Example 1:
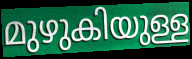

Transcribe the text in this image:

മുഴുകിയുള്ള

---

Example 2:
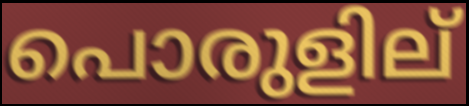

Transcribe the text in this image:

പൊരുളില്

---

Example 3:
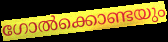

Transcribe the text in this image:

ഗോൽക്കൊണ്ടയും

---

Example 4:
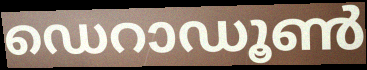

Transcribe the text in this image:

ഡെറാഡൂൺ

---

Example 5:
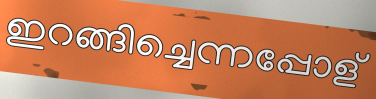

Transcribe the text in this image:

ഇറങ്ങിച്ചെന്നപ്പോള്